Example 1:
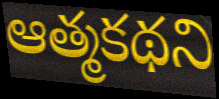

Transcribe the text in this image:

ఆత్మకథని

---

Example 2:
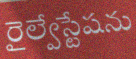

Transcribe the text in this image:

రైల్వేస్టేషను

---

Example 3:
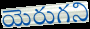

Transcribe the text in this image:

యెరుగని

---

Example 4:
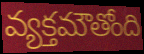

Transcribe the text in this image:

వ్యక్తమౌతోంది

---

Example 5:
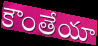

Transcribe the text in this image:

కౌంతేయా